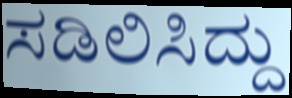
ಸಡಿಲಿಸಿದ್ದು